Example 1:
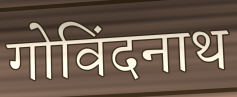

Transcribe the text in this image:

गोविंदनाथ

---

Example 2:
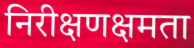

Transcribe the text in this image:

निरीक्षणक्षमता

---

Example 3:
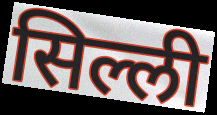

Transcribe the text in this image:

सिल्ली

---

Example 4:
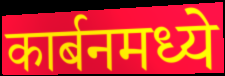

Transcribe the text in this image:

कार्बनमध्ये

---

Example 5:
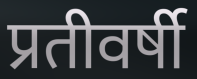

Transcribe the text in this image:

प्रतीवर्षी